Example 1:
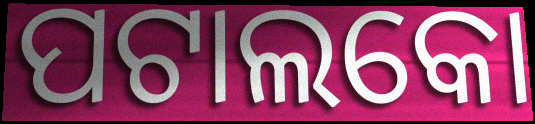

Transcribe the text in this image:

ପଟାଲକୋ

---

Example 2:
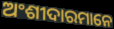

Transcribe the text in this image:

ଅଂଶୀଦାରମାନେ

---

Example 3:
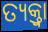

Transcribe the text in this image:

ତ୍ୟକ୍ତ୍ୱା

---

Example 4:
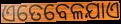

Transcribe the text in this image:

ଏତେବେଳଯାଏ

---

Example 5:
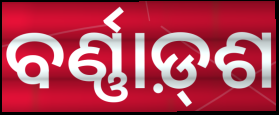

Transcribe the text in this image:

ବର୍ଣ୍ଣାଡ଼୍‌ଶ